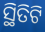
ସ୍ଥିତିଟି